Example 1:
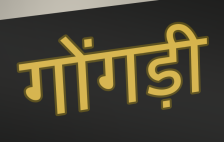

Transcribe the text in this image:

गोंगड़ी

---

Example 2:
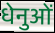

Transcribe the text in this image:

धेनुओं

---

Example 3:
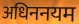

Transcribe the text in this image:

अधिननयम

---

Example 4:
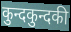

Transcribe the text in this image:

कुन्दकुन्दकी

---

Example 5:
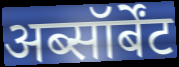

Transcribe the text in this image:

अब्सॉर्बेंट